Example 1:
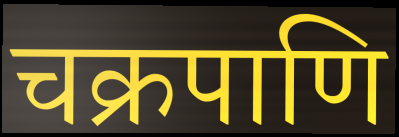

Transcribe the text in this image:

चक्रपाणि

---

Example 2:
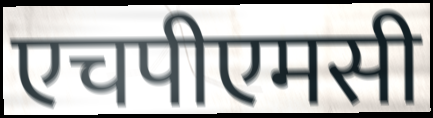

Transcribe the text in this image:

एचपीएमसी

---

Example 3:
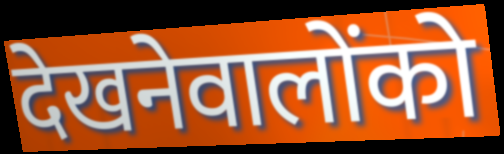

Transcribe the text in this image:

देखनेवालोंको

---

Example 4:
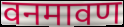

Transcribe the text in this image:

वनमावण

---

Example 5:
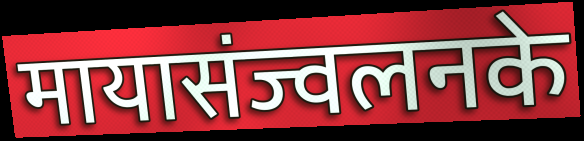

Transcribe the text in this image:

मायासंज्वलनके